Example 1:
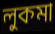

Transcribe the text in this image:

লুকমা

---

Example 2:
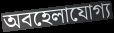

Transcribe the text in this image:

অবহেলাযোগ্য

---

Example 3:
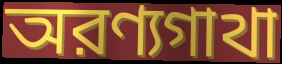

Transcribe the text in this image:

অরণ্যগাথা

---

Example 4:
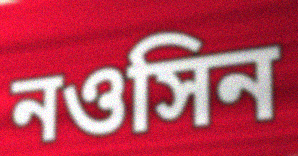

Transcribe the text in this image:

নওসিন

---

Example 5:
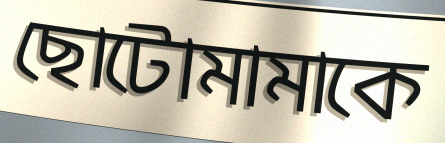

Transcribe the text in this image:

ছোটোমামাকে